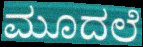
ಮೂದಲೆ